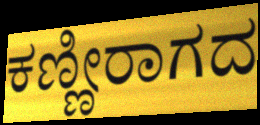
ಕಣ್ಣೀರಾಗದ